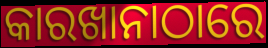
କାରଖାନାଠାରେ